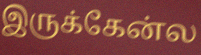
இருக்கேன்ல